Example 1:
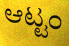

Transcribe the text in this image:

ಆಟ್ಟಂ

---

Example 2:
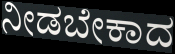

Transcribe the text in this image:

ನೀಡಬೇಕಾದ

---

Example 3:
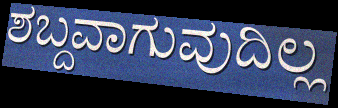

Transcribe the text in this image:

ಶಬ್ದವಾಗುವುದಿಲ್ಲ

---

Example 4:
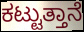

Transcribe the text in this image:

ಕಟ್ಟುತ್ತಾನೆ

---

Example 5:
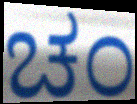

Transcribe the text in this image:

ಚಂ